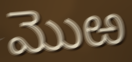
మొఱ